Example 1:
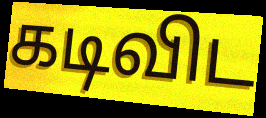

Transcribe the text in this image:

கடிவிட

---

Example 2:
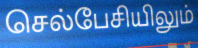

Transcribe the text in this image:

செல்பேசியிலும்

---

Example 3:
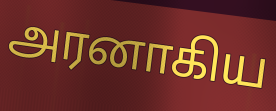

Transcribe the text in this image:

அரனாகிய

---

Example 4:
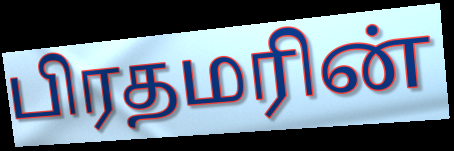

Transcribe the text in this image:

பிரதமரின்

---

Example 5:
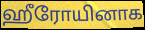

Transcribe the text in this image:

ஹீரோயினாக